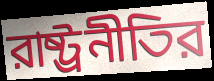
রাষ্ট্রনীতির